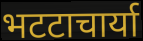
भटटाचार्या